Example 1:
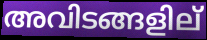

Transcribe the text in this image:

അവിടങ്ങളില്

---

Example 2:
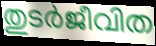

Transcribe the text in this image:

തുടർജീവിത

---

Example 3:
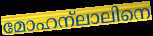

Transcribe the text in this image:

മോഹന്ലാലിനെ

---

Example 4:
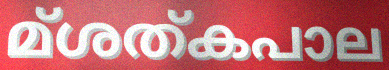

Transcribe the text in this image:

മ്ശത്കപാല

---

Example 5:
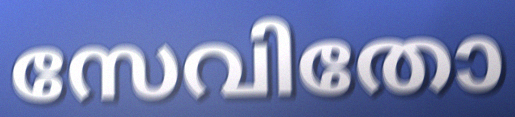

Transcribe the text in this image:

സേവിതോ